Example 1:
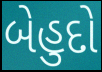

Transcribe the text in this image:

બેહુદો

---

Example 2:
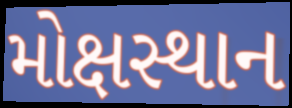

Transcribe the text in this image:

મોક્ષસ્થાન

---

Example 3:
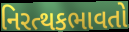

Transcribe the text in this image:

નિરત્થકભાવતો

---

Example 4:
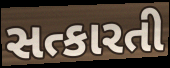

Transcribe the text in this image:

સત્કારતી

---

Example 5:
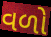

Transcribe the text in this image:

વળો